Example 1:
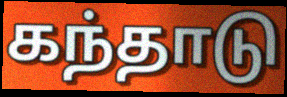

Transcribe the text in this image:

கந்தாடு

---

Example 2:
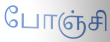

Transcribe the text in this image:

போஞ்சி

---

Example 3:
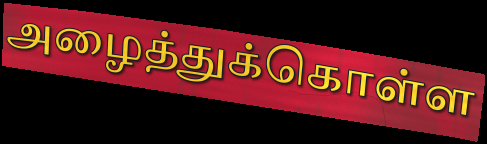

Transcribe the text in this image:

அழைத்துக்கொள்ள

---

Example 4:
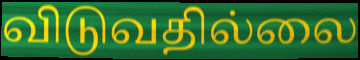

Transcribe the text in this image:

விடுவதில்லை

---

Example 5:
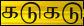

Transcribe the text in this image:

கடுகடு